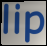
lip